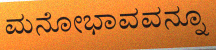
ಮನೋಭಾವವನ್ನೂ